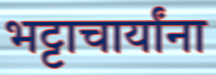
भट्टाचार्यांना